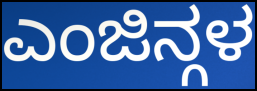
ಎಂಜಿನ್ಗಳ